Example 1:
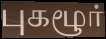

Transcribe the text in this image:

புகழூர்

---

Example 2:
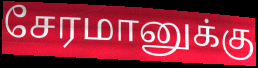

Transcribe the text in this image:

சேரமானுக்கு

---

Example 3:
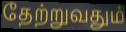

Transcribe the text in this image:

தேற்றுவதும்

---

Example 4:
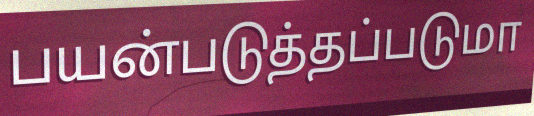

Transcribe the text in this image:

பயன்படுத்தப்படுமா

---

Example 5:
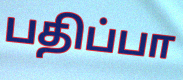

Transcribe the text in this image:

பதிப்பா